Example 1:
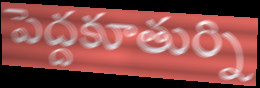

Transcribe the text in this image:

పెద్దకూతుర్ని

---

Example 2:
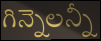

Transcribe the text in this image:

గిన్నెలన్నీ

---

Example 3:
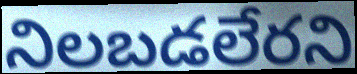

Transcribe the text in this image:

నిలబడలేరని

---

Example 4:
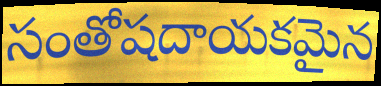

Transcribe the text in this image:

సంతోషదాయకమైన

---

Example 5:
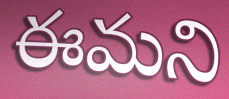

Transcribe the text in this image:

ఈమని